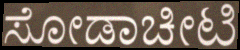
ಸೋಡಾಚೀಟಿ